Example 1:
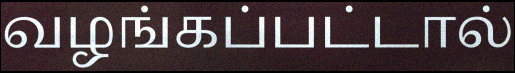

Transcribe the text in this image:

வழங்கப்பட்டால்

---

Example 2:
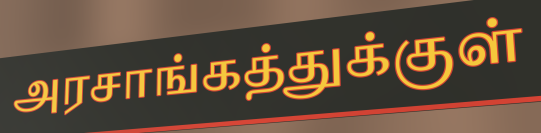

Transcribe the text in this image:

அரசாங்கத்துக்குள்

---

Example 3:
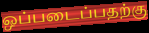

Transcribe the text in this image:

ஒப்படைப்பதற்கு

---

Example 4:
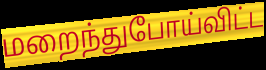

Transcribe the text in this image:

மறைந்துபோய்விட்ட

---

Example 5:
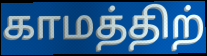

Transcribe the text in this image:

காமத்திற்